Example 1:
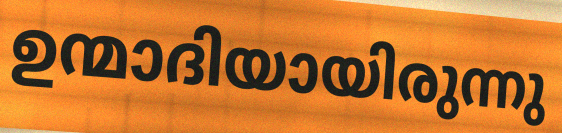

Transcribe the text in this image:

ഉന്മാദിയായിരുന്നു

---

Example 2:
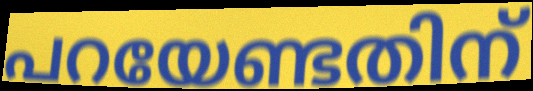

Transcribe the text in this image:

പറയേണ്ടതിന്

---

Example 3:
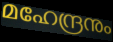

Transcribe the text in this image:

മഹേന്ദ്രനും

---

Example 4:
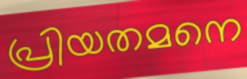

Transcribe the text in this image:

പ്രിയതമനെ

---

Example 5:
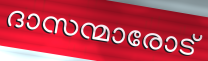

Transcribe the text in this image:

ദാസന്മാരോട്